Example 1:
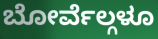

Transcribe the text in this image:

ಬೋರ್ವೆಲ್ಗಳೂ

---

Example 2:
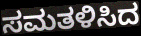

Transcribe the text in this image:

ಸಮತಳಿಸಿದ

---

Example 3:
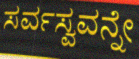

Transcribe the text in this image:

ಸರ್ವಸ್ವವನ್ನೇ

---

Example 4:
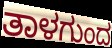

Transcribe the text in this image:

ತಾಳಗುಂದ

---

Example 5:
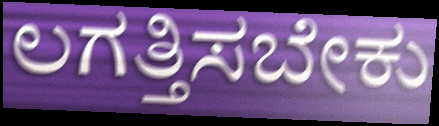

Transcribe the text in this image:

ಲಗತ್ತಿಸಬೇಕು